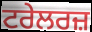
ਟਰੇਲਰਜ਼